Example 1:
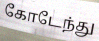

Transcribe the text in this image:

கோடேந்து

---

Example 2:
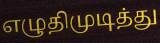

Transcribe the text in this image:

எழுதிமுடித்து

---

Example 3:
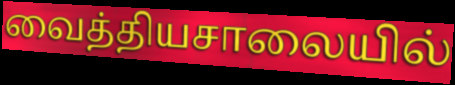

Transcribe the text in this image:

வைத்தியசாலையில்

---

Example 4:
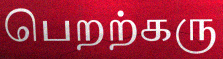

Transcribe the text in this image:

பெறற்கரு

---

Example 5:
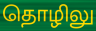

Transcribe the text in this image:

தொழிலு